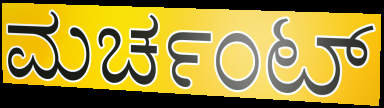
ಮರ್ಚಂಟ್